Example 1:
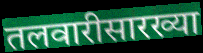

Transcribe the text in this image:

तलवारीसारख्या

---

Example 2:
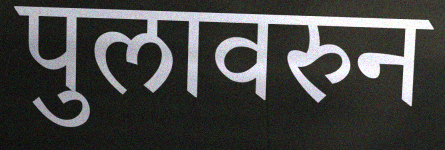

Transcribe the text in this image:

पुलावरुन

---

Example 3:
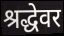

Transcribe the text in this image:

श्रद्धेवर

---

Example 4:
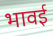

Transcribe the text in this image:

भावई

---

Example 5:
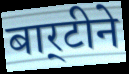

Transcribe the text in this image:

बार्टीने